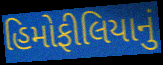
હિમોફીલિયાનું